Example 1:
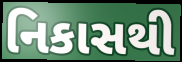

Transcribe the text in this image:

નિકાસથી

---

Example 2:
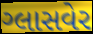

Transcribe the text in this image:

ગ્લાસવેર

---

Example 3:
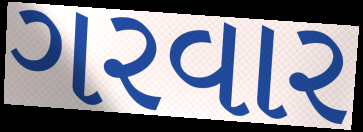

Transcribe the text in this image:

ગરવાર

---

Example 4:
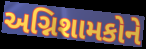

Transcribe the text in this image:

અગ્નિશામકોને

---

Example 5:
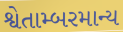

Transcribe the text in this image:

શ્વેતામ્બરમાન્ય